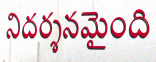
నిదర్శనమైంది